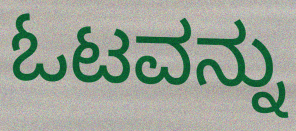
ಓಟವನ್ನು